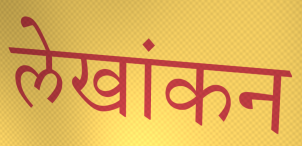
लेखांकन